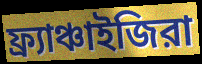
ফ্র্যাঞ্চাইজিরা